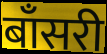
बाँसरी